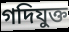
গদিযুক্ত